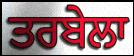
ਤਰਬੇਲਾ